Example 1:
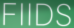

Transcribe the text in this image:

FIIDS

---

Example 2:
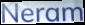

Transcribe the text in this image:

Neram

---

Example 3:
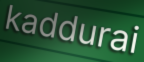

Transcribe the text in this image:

kaddurai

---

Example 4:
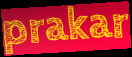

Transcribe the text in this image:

prakar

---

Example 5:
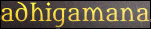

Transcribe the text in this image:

adhigamana